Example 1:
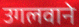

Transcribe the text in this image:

उगलवाने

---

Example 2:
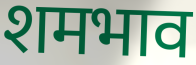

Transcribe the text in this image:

शमभाव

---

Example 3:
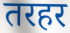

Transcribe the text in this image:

तरहर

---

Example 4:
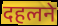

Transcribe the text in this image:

दहलने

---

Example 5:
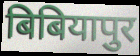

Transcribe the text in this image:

बिबियापुर